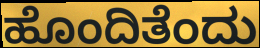
ಹೊಂದಿತೆಂದು